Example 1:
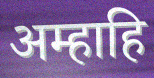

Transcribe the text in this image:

अम्हाहि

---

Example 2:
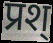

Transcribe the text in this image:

प्रश्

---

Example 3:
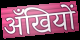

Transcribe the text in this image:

अँखियों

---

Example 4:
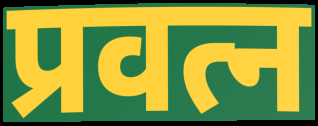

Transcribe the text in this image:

प्रवत्न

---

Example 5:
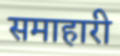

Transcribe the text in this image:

समाहारी